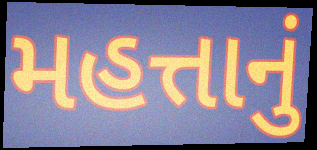
મહત્તાનું